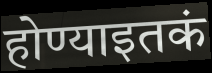
होण्याइतकं